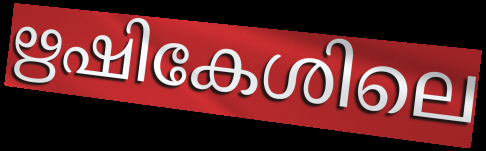
ഋഷികേശിലെ